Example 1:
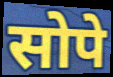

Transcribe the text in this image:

सोपे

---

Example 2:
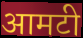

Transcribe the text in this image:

आमटी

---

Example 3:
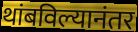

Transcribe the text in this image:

थांबविल्यानंतर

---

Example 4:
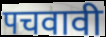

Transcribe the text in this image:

पचवावी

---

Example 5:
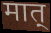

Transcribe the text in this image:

मात्